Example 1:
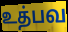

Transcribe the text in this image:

உத்பவ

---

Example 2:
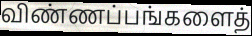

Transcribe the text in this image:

விண்ணப்பங்களைத்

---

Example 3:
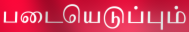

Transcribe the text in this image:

படையெடுப்பும்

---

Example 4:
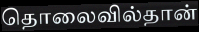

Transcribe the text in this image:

தொலைவில்தான்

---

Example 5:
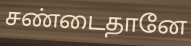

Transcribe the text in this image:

சண்டைதானே